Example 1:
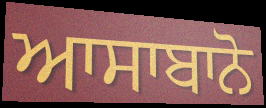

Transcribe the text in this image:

ਆਸਾਬਾਨੋ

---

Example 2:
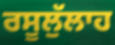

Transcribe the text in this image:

ਰਸੂਲੁੱਲਾਹ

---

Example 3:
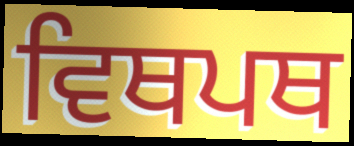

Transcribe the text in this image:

ਵਿਥਪਥ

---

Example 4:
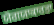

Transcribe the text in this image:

ਯੋਗਯਾਕਾਰਤਾ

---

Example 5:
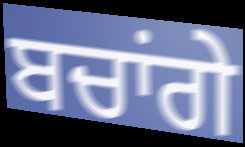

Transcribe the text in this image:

ਬਚਾਂਗੇ